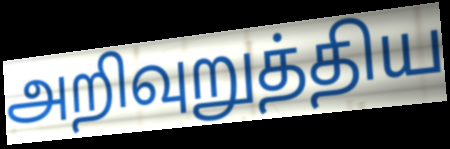
அறிவுறுத்திய